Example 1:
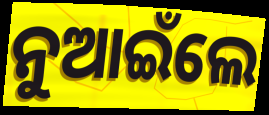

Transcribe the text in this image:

ନୁଆଇଁଲେ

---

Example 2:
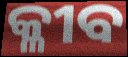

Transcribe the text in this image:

କ୍ଳୀବ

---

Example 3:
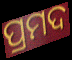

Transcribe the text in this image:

ପ୍ରମଦ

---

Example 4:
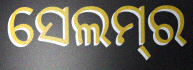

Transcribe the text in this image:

ସେଲମ୍‌ର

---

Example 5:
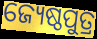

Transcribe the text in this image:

ଜ୍ୟେଷ୍ଠପୁତ୍ର